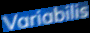
Variabilis